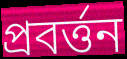
প্রবর্ত্তন